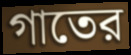
গাতের